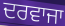
ਦਰਵਾਜਾ